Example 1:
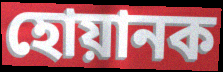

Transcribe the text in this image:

হোয়ানক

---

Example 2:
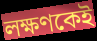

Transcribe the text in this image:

লক্ষণকেই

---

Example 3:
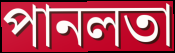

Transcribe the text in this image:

পানলতা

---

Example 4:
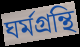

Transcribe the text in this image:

ঘর্মগ্রন্থি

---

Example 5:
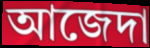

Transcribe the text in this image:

আজেদা